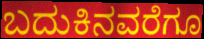
ಬದುಕಿನವರೆಗೂ